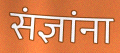
संज्ञांना